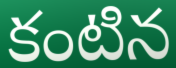
కంటిన